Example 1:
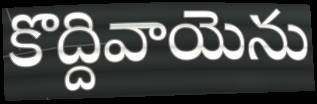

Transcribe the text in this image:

కొద్దివాయెను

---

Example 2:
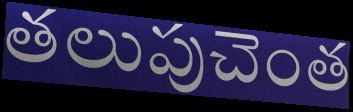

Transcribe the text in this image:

తలుపుచెంత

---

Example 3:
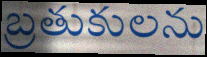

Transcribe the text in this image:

బ్రతుకులను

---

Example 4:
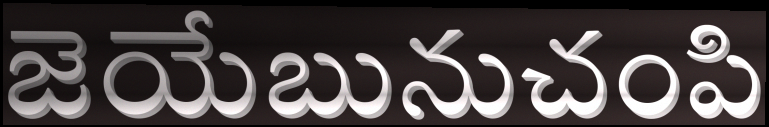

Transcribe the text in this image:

జెయేబునుచంపి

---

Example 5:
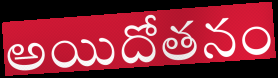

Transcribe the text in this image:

అయిదోతనం